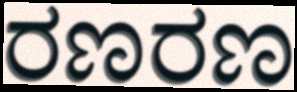
ರಣರಣ